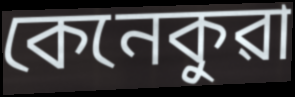
কেনেকুৱা